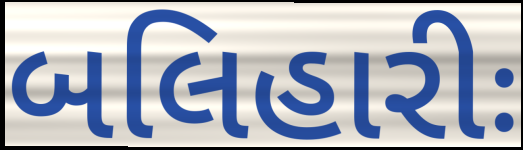
બલિહારીઃ